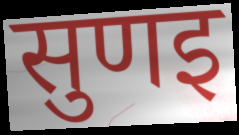
सुणइ